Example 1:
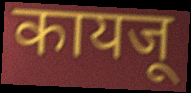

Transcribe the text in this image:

कायजू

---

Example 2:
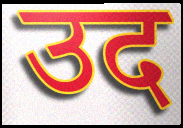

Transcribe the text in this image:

उद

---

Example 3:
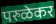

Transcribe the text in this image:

परुळेकर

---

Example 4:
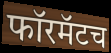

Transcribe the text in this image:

फॉरमॅटच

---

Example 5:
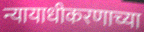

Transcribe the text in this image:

न्यायाधीकरणाच्या